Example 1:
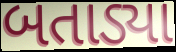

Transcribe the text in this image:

બતાડ્યા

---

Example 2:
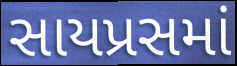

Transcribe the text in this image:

સાયપ્રસમાં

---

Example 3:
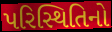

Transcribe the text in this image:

પરિસ્થિતિનો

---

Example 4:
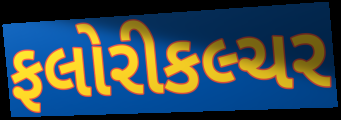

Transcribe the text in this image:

ફલોરીકલ્ચર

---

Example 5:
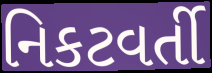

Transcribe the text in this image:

નિકટવર્તી